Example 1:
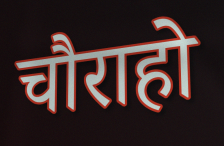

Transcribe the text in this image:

चौराहो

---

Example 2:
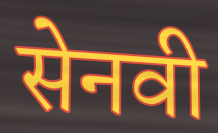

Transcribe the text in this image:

सेनवी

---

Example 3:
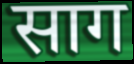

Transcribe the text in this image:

साग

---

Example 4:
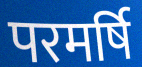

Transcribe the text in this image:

परमर्षि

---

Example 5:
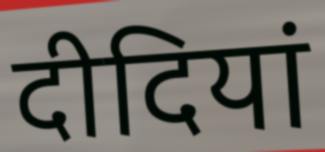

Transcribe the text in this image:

दीदियां